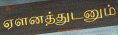
ஏளனத்துடனும்